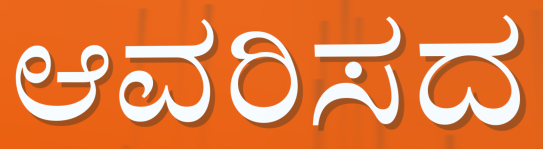
ಆವರಿಸದ